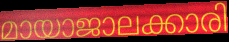
മായാജാലക്കാരി